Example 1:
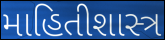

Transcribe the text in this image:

માહિતીશાસ્ત્ર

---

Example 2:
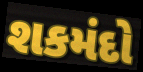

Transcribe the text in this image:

શકમંદો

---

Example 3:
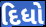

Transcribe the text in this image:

દિધો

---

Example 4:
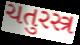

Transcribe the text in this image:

ચતુરસ્ત્ર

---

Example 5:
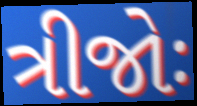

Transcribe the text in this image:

ત્રીજોઃ